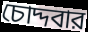
চোদ্দবার